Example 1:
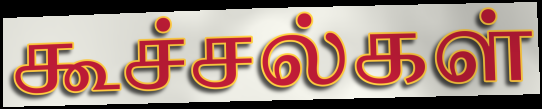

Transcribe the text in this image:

கூச்சல்கள்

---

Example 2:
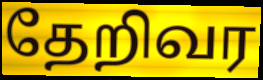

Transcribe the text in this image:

தேறிவர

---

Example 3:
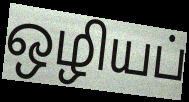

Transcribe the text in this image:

ஒழியப்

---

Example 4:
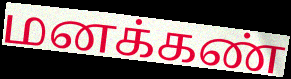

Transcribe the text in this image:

மனக்கண்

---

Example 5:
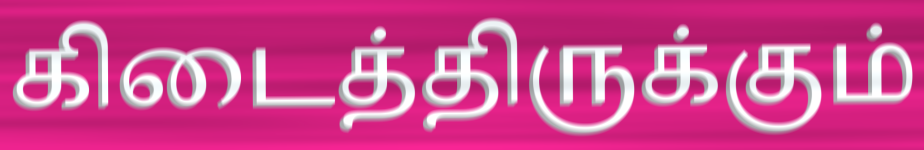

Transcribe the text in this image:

கிடைத்திருக்கும்